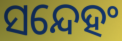
ସନ୍ଦେହଂ